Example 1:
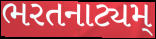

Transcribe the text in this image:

ભરતનાટ્યમ્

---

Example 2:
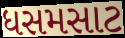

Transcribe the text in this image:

ધસમસાટ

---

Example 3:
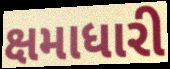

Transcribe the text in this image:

ક્ષમાધારી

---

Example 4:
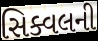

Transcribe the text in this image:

સિક્વલની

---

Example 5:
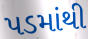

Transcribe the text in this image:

પડમાંથી